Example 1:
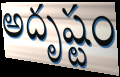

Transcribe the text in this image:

అదృష్టం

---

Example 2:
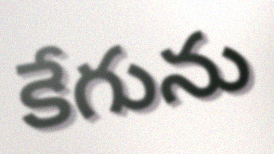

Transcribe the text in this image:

కేగును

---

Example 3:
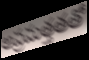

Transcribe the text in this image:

అప్రమత్తతతో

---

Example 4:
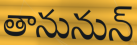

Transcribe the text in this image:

తానునున్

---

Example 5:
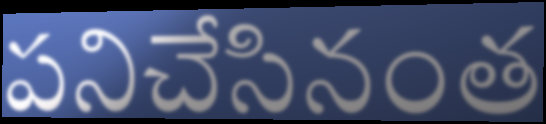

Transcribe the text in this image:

పనిచేసినంత